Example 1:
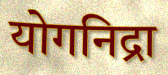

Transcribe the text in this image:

योगनिद्रा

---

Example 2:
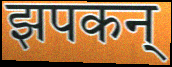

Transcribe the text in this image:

झपकन्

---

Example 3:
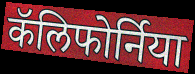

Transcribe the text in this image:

कॅलिफोर्निया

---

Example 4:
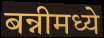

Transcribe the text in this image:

बन्नीमध्ये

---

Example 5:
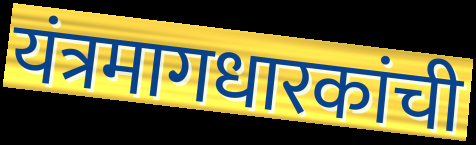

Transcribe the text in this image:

यंत्रमागधारकांची